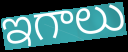
ఇగాలు